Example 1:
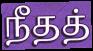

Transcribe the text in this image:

நீதத்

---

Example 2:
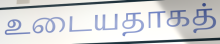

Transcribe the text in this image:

உடையதாகத்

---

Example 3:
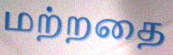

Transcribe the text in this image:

மற்றதை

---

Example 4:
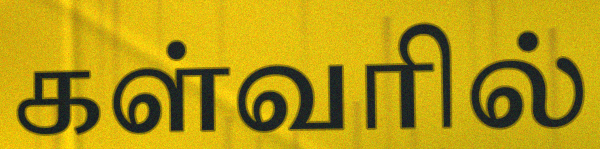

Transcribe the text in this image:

கள்வரில்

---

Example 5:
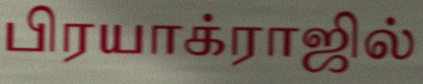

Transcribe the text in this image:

பிரயாக்ராஜில்